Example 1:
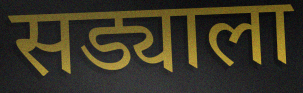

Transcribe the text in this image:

सड्याला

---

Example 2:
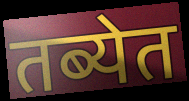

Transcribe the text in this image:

तब्येत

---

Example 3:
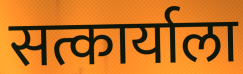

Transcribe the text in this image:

सत्कार्याला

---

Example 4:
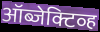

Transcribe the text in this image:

ऑब्जेक्टिव्ह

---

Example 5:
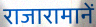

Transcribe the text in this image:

राजारामानें